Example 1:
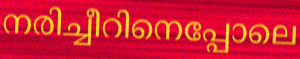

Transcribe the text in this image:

നരിച്ചീറിനെപ്പോലെ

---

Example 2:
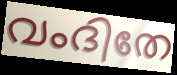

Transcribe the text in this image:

വംദിതേ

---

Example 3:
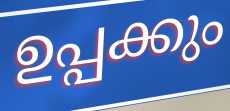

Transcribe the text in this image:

ഉപ്പക്കും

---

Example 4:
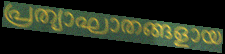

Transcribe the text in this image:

പ്രത്യാഘാതങ്ങളായ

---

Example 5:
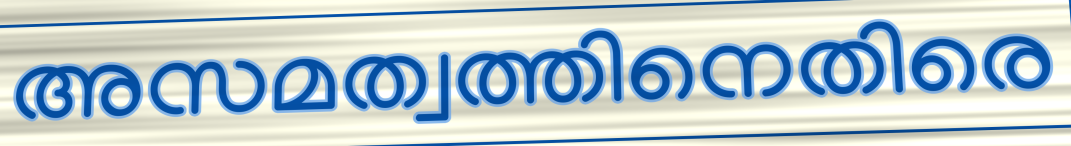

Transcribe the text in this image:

അസമത്വത്തിനെതിരെ